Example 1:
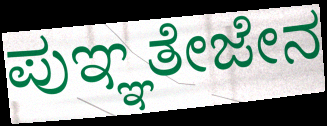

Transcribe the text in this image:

ಪುಞ್ಞತೇಜೇನ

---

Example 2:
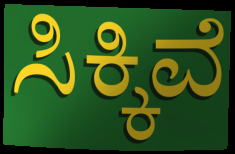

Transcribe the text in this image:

ಸಿಕ್ಕಿವೆ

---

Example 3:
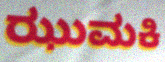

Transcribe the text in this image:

ಝುಮಕಿ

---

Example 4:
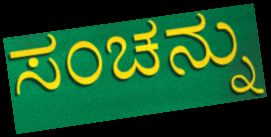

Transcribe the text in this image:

ಸಂಚನ್ನು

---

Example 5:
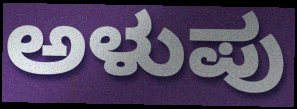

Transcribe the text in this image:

ಅಳುಪು